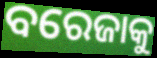
ବରେଜାକୁ